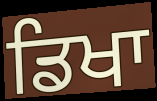
ਡਿਖਾ